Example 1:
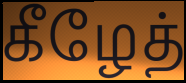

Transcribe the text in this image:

கீழேத்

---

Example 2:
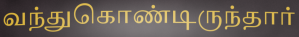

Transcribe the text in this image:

வந்துகொண்டிருந்தார்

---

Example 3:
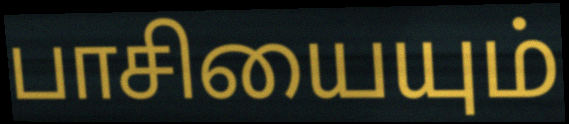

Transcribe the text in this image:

பாசியையும்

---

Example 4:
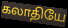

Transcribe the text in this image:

கலாதியே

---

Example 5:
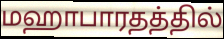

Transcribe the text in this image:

மஹாபாரதத்தில்